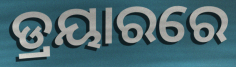
ଡ୍ରୟାରରେ